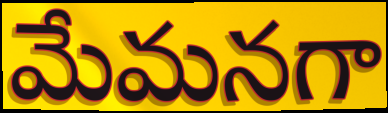
మేమనగా